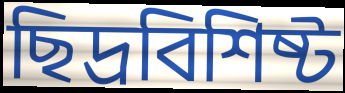
ছিদ্রবিশিষ্ট